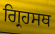
ਗ੍ਰਿਹਸਥ